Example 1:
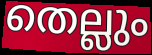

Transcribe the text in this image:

തെല്ലും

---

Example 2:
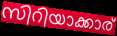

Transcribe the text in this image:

സിറിയാക്കാര്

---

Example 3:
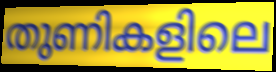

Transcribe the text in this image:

തുണികളിലെ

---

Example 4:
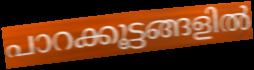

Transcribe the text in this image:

പാറക്കൂട്ടങ്ങളിൽ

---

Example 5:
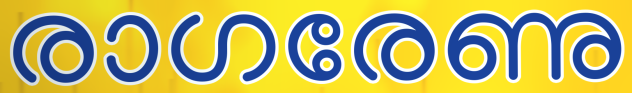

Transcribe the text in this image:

രാഗരേണു